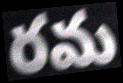
రమ